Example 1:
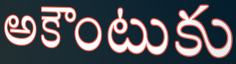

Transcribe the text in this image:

అకౌంటుకు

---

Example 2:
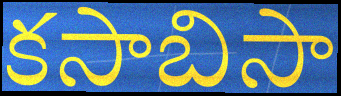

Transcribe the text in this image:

కసాబిసా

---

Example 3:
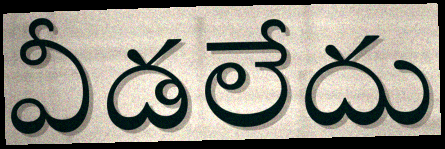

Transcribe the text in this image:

వీడలేదు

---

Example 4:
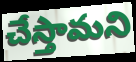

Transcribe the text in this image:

చేస్తామని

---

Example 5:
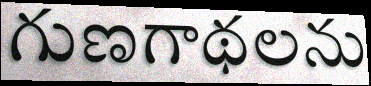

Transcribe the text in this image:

గుణగాథలను